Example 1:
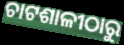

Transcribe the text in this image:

ଚାଟଶାଳୀଠାରୁ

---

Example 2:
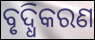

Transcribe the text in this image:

ବୃଦ୍ଧିକରଣ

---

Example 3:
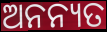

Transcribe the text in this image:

ଅନନ୍ୟତ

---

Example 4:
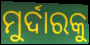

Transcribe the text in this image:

ମୁର୍ଦାରକୁ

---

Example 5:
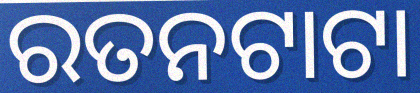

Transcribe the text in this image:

ରତନଟାଟା